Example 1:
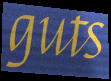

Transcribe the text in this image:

guts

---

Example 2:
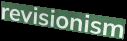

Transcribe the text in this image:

revisionism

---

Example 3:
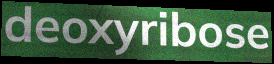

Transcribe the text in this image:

deoxyribose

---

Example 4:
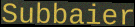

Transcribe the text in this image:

Subbaier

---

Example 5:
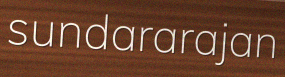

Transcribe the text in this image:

sundararajan